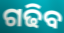
ଗଢିବ